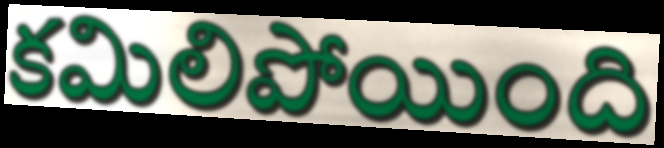
కమిలిపోయింది